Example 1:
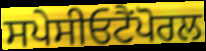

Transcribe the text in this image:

ਸਪੇਸੀਓਟੈਂਪੋਰਲ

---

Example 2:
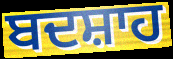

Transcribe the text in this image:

ਬਦਸ਼ਾਹ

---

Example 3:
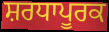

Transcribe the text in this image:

ਸ਼ਰਧਾਪੂਰਕ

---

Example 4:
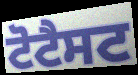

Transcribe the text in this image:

ਟੋਟੈਸਟ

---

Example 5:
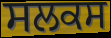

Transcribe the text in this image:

ਸਲਕਸ